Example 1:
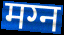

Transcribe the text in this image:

मग्‍न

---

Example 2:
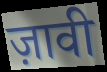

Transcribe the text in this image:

ज़ावी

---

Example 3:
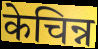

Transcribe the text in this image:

केचिन्न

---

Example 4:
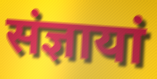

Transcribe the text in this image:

संज्ञायां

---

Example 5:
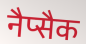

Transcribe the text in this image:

नैप्सैक